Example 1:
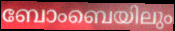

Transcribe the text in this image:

ബോംബെയിലും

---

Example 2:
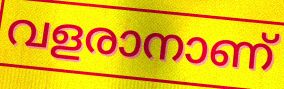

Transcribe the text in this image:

വളരാനാണ്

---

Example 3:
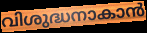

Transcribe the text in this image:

വിശുദ്ധനാകാൻ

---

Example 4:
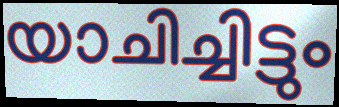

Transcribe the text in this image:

യാചിച്ചിട്ടും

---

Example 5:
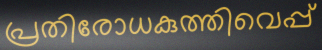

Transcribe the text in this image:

പ്രതിരോധകുത്തിവെപ്പ്